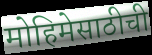
मोहिमेसाठीची